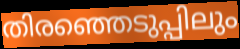
തിരഞ്ഞെടുപ്പിലും